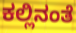
ಕಲ್ಲಿನಂತೆ